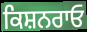
ਕਿਸ਼ਨਰਾਓ